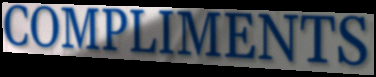
COMPLIMENTS